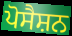
ਪੋਸੈਸ਼ਨ